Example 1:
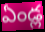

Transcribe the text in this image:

ఏండ్ల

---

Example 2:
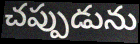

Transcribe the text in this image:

చప్పుడును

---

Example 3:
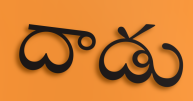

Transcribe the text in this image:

దాడు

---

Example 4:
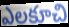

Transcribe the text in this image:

ఎలకూచి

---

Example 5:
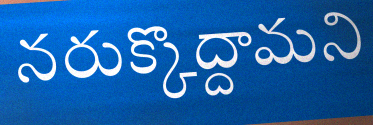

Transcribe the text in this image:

నరుక్కొద్దామని